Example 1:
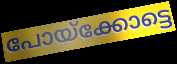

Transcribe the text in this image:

പോയ്ക്കോട്ടെ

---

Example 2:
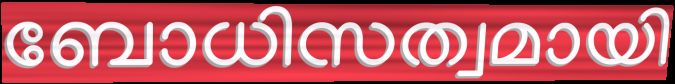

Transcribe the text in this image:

ബോധിസത്വമായി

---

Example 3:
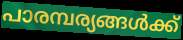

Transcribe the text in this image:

പാരമ്പര്യങ്ങൾക്ക്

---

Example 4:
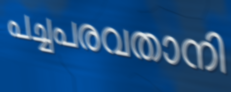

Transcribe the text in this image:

പച്ചപരവതാനി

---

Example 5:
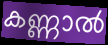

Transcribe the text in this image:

കണ്ണാൽ